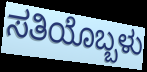
ಸತಿಯೊಬ್ಬಳು